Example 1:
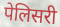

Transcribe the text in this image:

पेलिसरी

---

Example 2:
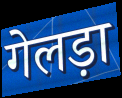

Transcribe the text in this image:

गेलड़ा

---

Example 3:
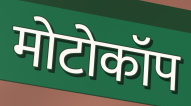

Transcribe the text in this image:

मोटोकॉप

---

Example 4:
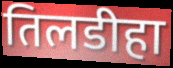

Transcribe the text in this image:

तिलडीहा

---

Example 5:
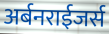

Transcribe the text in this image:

अर्बनराईजर्स